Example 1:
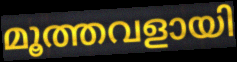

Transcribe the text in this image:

മൂത്തവളായി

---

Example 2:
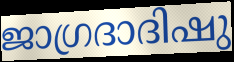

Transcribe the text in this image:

ജാഗ്രദാദിഷു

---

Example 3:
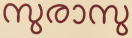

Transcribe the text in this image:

സുരാസു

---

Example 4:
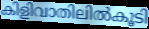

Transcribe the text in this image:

കിളിവാതിലിൽകൂടി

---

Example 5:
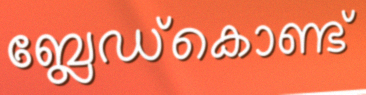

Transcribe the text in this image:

ബ്ലേഡ്കൊണ്ട്